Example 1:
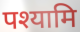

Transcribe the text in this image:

पश्यामि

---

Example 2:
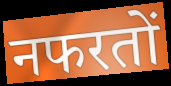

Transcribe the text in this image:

नफरतों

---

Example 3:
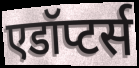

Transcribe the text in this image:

एडॉप्टर्स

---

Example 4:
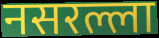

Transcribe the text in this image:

नसरल्ला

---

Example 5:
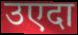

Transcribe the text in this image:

उएदा